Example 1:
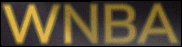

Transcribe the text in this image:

WNBA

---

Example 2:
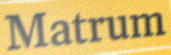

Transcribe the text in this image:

Matrum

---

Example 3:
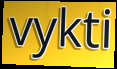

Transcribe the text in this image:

vykti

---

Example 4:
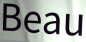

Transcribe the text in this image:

Beau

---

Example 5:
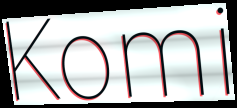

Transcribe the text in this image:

Komi